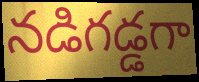
నడిగడ్డగా